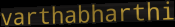
varthabharthi